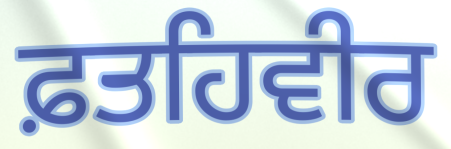
ਫ਼ਤਹਿਵੀਰ